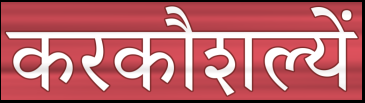
करकौशल्यें